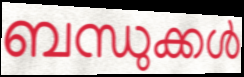
ബന്ധുക്കൾ